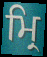
ਮ੍ਰਿ